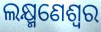
ଲକ୍ଷ୍ମଣେଶ୍ୱର